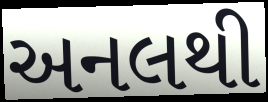
અનલથી